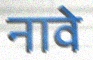
नावे